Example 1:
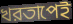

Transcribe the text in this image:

খরতাপেই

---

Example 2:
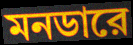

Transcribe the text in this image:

মনডারে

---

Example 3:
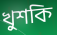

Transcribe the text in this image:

খুশকি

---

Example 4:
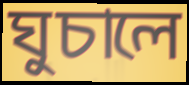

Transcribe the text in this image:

ঘুচালে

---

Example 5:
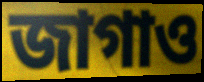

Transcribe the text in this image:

জাগাও